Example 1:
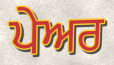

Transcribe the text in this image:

ਪੇਅਰ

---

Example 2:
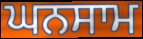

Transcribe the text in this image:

ਘਨਸਾਮ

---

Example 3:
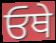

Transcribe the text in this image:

ਓਥੇ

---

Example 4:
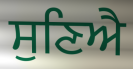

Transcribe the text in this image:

ਸੁਣਿਐ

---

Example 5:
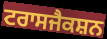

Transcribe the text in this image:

ਟਰਾਸਜੈਕਸ਼ਨ